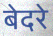
बेदरे